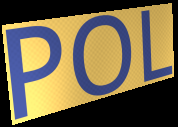
POL